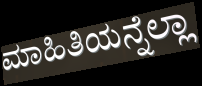
ಮಾಹಿತಿಯನ್ನೆಲ್ಲಾ